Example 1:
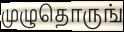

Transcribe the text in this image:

முழுதொருங்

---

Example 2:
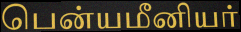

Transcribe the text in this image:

பென்யமீனியர்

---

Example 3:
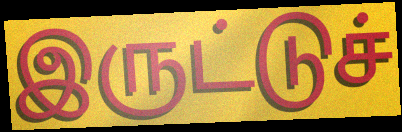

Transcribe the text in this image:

இருட்டுச்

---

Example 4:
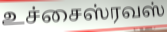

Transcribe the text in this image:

உச்சைஸ்ரவஸ்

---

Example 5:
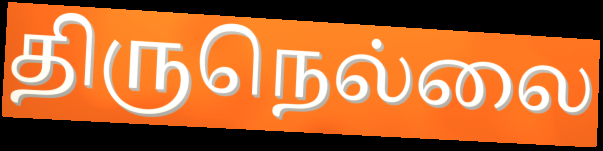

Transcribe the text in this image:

திருநெல்லை